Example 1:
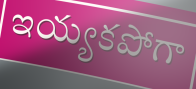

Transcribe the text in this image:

ఇయ్యకపోగా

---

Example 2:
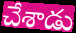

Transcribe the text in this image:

చేశాడు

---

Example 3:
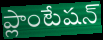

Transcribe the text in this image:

ప్లాంటేషన్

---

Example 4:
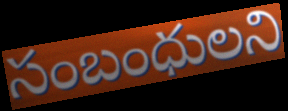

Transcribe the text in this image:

సంబంధులని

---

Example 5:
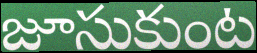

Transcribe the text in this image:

జూసుకుంట